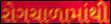
રોગચાળામાંથી